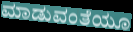
ಮಾಡುವಂತೆಯೂ